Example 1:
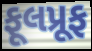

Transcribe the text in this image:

ફૂલપ્રૂફ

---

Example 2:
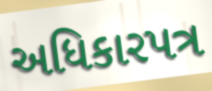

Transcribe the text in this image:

અધિકારપત્ર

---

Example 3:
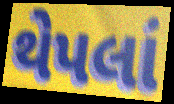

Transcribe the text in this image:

થેપલાં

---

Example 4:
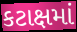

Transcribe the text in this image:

કટાક્ષમાં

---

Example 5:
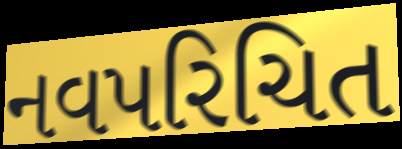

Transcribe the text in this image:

નવપરિચિત